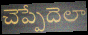
చెప్పేదెలా